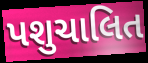
પશુચાલિત